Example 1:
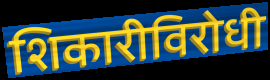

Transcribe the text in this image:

शिकारीविरोधी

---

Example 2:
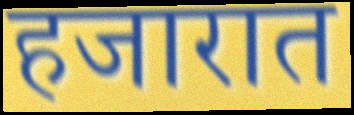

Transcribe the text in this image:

हजारात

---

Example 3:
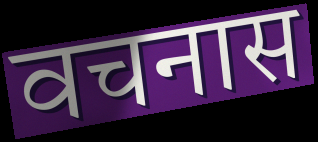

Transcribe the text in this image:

वचनास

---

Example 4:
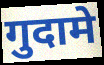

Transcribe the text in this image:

गुदामे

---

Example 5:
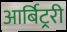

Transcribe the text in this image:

आर्बिट्ररी